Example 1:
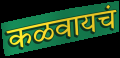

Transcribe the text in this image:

कळवायचं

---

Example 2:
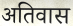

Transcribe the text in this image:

अतिवास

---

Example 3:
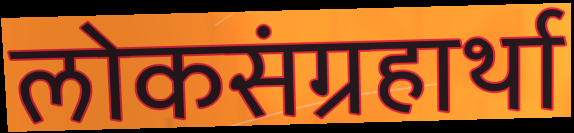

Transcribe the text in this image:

लोकसंग्रहार्था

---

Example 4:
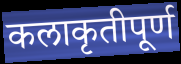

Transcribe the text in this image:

कलाकृतीपूर्ण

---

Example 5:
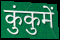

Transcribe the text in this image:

कुंकुमें